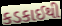
કડકાઈથી